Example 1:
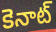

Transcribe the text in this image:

కెనాట్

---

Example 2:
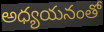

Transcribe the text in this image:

అధ్యయనంతో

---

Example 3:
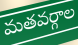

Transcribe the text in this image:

మతవర్గాల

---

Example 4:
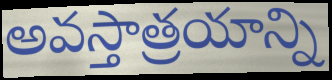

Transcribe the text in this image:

అవస్తాత్రయాన్ని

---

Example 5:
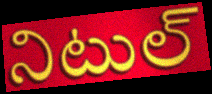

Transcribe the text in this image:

నిటుల్